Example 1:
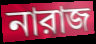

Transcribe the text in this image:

নারাজ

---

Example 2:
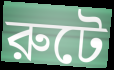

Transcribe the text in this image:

রুটে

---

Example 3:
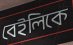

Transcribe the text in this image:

বেইলিকে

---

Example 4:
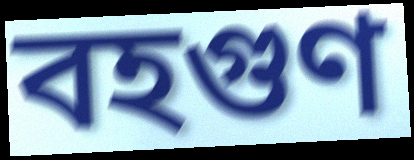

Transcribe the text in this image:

বহগুণ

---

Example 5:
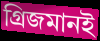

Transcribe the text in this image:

গ্রিজমানই